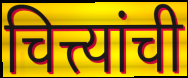
चित्त्यांची